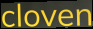
cloven